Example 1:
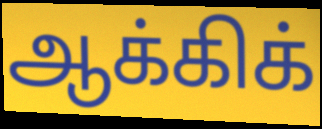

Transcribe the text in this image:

ஆக்கிக்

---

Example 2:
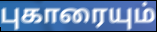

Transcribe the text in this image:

புகாரையும்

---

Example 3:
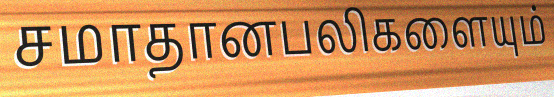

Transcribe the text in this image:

சமாதானபலிகளையும்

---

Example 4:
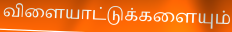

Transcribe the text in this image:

விளையாட்டுக்களையும்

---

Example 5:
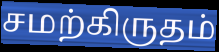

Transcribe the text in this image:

சமற்கிருதம்